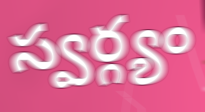
స్వర్గ్యం